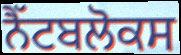
ਨੈੱਟਬਲੋਕਸ